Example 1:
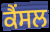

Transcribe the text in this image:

ਕੈਂਸਲ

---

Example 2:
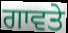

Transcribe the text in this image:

ਗਾਵਤੇ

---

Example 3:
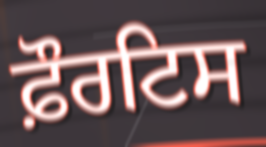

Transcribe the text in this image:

ਫ਼ੌਰਟਿਸ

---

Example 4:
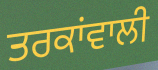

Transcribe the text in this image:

ਤਰਕਾਂਵਾਲੀ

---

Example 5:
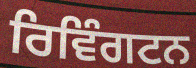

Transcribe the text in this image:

ਰਿਵਿੰਗਟਨ